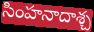
సింహనాదాశ్చ